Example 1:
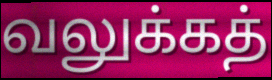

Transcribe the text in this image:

வலுக்கத்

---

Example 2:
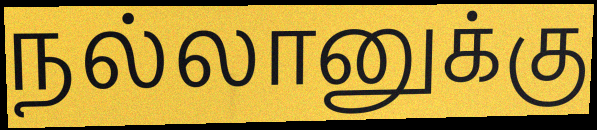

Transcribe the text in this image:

நல்லானுக்கு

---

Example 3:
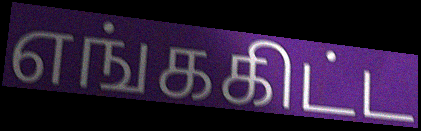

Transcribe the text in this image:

எங்ககிட்ட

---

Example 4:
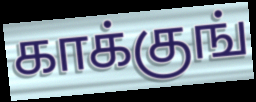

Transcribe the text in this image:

காக்குங்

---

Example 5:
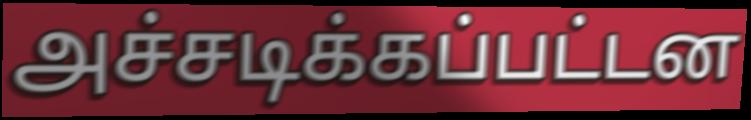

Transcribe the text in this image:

அச்சடிக்கப்பட்டன